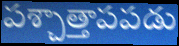
పశ్చాత్తాపపడు